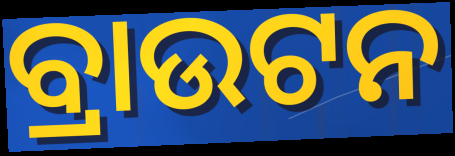
ବ୍ରାଉଟନ